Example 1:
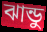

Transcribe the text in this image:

ঝান্ডু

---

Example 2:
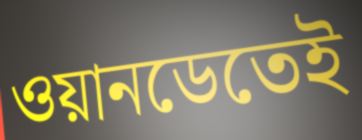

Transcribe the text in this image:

ওয়ানডেতেই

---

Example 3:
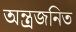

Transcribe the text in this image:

অন্ত্রজনিত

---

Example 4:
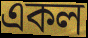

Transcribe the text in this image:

একল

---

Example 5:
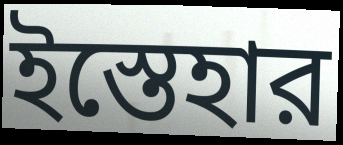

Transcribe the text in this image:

ইস্তেহার